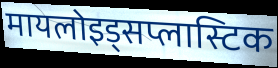
मायलोइड्सप्लास्टिक